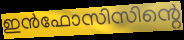
ഇൻഫോസിസിന്റെ